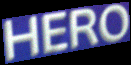
HERO